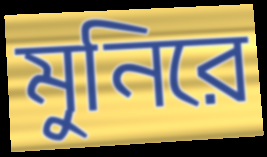
মুনিরে